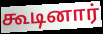
கூடினார்